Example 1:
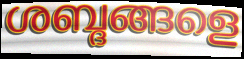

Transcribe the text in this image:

ശബ്ദങ്ങളെ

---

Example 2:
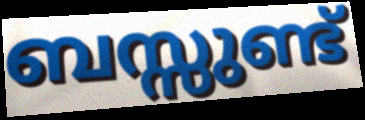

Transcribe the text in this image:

ബസ്സുണ്ട്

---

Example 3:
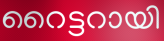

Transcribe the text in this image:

റൈട്ടറായി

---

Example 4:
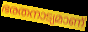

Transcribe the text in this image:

ഭരതനാട്യമാണ്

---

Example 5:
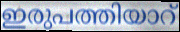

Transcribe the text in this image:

ഇരുപത്തിയാറ്